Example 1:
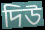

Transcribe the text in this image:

দিউ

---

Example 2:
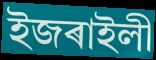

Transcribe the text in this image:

ইজৰাইলী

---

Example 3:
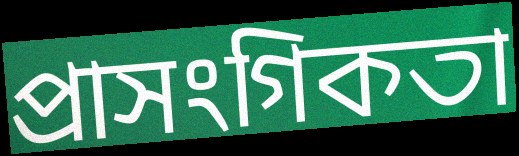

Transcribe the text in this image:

প্ৰাসংগিকতা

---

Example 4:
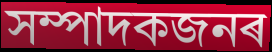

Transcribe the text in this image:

সম্পাদকজনৰ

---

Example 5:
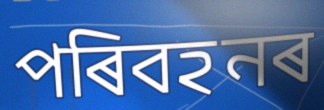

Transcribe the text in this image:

পৰিবহনৰ